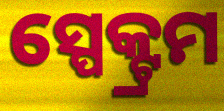
ସ୍ପେକ୍ଟ୍ରମ